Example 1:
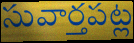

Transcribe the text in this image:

సువార్తపట్ల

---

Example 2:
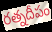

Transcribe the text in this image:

రత్నదీపం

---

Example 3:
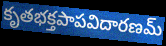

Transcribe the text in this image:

కృతభక్తపాపవిదారణమ్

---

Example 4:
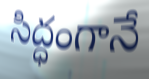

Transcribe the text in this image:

సిద్ధంగానే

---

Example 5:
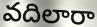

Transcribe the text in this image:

వదిలారా